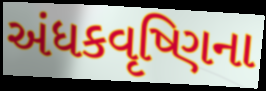
અંધકવૃષ્ણિના